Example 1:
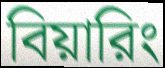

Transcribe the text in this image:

বিয়ারিং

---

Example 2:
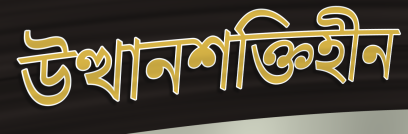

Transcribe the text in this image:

উত্থানশক্তিহীন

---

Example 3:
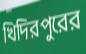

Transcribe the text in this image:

খিদিরপুরের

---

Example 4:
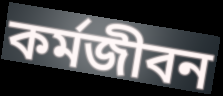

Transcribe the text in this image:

কর্মজীবন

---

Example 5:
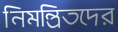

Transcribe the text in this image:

নিমন্ত্রিতদের